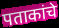
पताकांचे